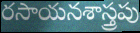
రసాయనశాస్త్రపు